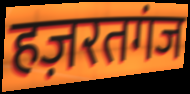
हज़रतगंज